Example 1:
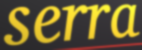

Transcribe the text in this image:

serra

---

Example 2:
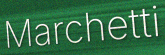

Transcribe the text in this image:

Marchetti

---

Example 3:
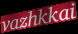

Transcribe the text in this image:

vazhkkai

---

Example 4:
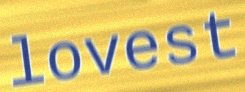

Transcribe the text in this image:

lovest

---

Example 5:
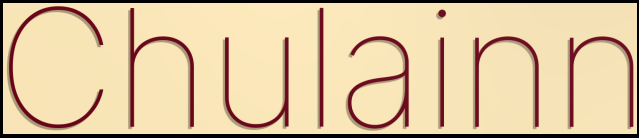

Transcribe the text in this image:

Chulainn